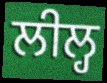
ਲੀਲ੍ਹ